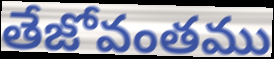
తేజోవంతము